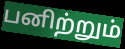
பனிற்றும்